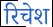
रिचेश